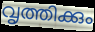
വൃത്തിക്കും